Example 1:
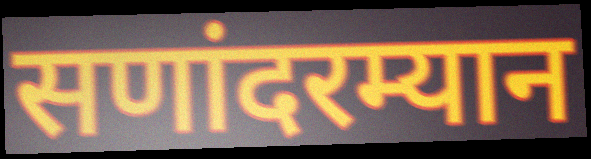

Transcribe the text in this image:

सणांदरम्यान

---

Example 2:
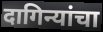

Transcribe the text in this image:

दागिन्यांचा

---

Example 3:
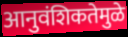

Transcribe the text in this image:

आनुवंशिकतेमुळे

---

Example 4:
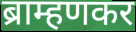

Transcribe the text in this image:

ब्राम्हणकर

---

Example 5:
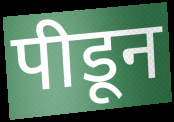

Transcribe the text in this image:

पीडून